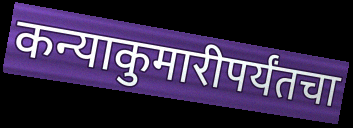
कन्याकुमारीपर्यंतचा